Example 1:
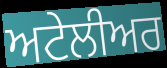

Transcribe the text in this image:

ਅਟੇਲੀਅਰ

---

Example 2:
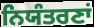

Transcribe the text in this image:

ਨਿਯੰਤਰਣਾਂ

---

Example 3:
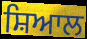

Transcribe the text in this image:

ਸ਼ਿਆਲ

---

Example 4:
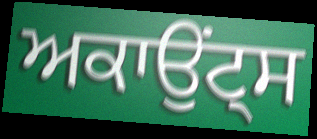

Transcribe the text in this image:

ਅਕਾਉਂਟ੍ਸ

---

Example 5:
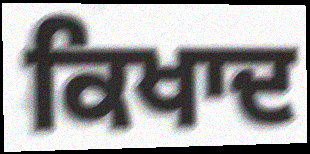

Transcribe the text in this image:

ਕਿਖਾਦ